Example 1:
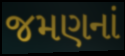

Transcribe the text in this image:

જમણનાં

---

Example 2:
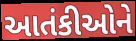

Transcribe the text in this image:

આતંકીઓને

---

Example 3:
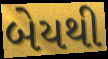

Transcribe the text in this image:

બેયથી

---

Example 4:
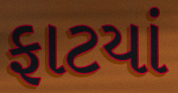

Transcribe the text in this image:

ફાટયાં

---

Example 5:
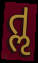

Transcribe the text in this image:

તૢ